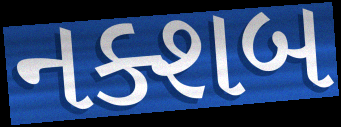
નક્શબ